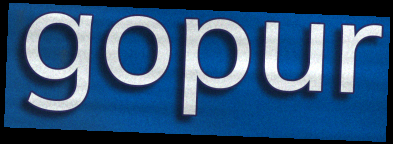
gopur